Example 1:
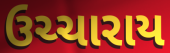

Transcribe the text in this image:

ઉચ્ચારાય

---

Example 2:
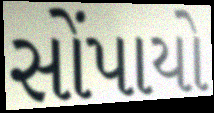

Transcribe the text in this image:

સોંપાયો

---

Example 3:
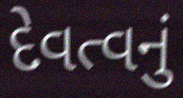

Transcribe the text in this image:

દેવત્વનું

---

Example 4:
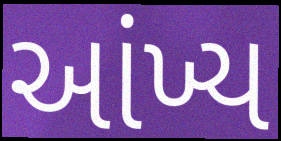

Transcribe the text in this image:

આંખ્ય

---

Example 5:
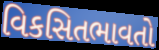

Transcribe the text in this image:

વિકસિતભાવતો